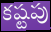
కష్టపు